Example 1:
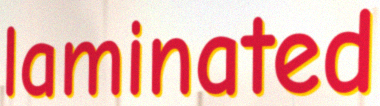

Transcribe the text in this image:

laminated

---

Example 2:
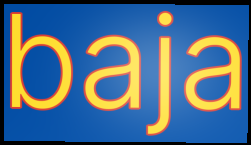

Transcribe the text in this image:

baja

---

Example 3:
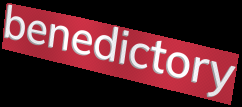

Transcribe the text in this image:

benedictory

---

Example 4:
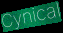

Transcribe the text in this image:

Cynical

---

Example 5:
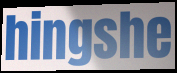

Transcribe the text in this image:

hingshe